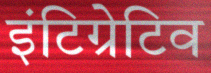
इंटिग्रेटिव